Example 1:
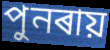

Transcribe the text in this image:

পুনৰায়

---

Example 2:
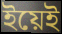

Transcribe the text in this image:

ইয়েই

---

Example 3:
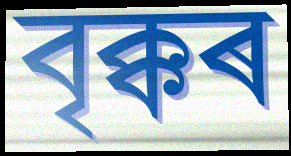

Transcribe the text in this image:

বৃক্কৰ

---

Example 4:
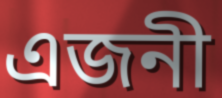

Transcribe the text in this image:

এজনী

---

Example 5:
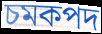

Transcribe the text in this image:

চমকপদ